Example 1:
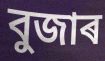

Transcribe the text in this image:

বুজাৰ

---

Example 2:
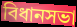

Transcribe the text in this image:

বিধানসভা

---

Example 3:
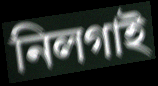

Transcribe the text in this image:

নিলগাই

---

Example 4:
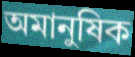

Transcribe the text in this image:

অমানুষিক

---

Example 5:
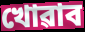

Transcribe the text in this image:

খোৱাব